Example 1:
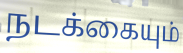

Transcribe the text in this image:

நடக்கையும்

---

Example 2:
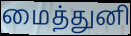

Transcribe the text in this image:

மைத்துனி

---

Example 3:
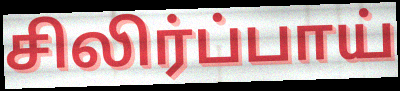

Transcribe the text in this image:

சிலிர்ப்பாய்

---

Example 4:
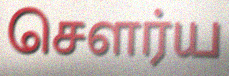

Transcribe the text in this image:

சௌர்ய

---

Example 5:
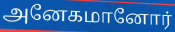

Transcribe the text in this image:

அனேகமானோர்